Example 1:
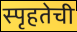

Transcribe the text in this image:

स्पृहतेची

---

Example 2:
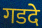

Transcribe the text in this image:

गडदे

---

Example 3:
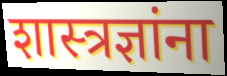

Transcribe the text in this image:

शास्त्रज्ञांना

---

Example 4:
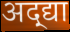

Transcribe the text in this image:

अद्द्या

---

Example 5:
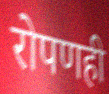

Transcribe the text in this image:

रोपणही